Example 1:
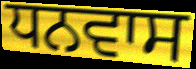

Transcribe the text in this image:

ਧਨਵਾਸ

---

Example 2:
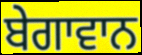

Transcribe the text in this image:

ਬੇਗਾਵਾਨ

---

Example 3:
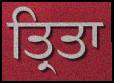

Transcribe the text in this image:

ਤ੍ਰਿਤਾ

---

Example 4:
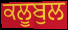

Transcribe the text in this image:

ਕਲੂਬੁਲ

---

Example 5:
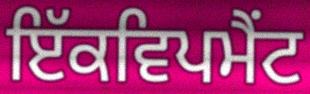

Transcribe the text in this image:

ਇੱਕਵਿਪਮੈਂਟ